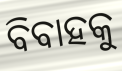
ବିବାହକୁ